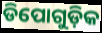
ଡିପୋଗୁଡ଼ିକ